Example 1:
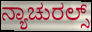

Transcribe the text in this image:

ನ್ಯಾಚುರಲ್ಸ್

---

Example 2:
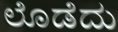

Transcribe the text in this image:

ಲೊಡೆದು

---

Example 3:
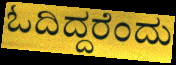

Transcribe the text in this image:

ಓದಿದ್ದರೆಂದು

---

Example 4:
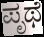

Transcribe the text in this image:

ಪೃಥೆ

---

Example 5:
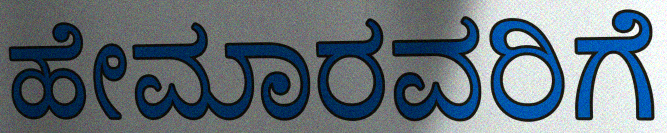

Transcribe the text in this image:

ಹೇಮಾರವರಿಗೆ